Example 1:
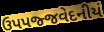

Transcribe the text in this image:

ઉપપજ્જવેદનીયં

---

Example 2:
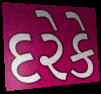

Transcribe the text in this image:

દરેકે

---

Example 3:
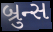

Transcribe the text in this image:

બ્રુન્સ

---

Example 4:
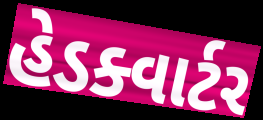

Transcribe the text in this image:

હેડક્વાર્ટર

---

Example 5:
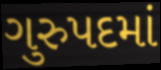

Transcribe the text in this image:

ગુરુપદમાં